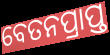
ବେତନପ୍ରାପ୍ତ